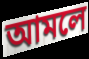
আমলে